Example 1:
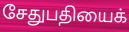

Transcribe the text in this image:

சேதுபதியைக்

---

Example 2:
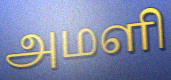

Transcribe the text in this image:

அமளி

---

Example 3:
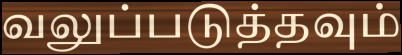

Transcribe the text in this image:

வலுப்படுத்தவும்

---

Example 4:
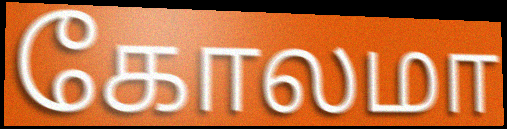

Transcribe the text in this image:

கோலமா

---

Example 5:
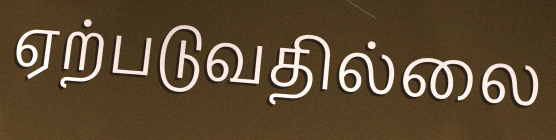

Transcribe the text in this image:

ஏற்படுவதில்லை